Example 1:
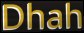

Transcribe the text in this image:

Dhah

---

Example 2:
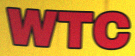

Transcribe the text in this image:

WTC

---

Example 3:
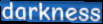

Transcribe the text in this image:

darkness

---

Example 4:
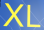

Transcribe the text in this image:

XL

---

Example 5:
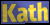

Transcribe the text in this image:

Kath